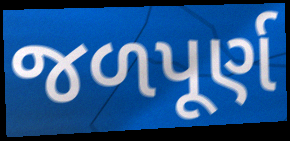
જળપૂર્ણ